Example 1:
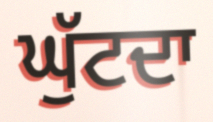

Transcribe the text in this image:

ਘੁੱਟਦਾ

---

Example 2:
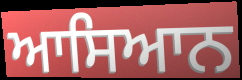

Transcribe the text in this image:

ਆਸਿਆਨ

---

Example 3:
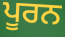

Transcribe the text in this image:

ਪੂਰਨ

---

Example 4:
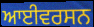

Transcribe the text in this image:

ਆਈਵਰਸਨ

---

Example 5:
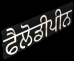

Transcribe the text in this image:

ਫੈਲੋਡੀਪੀਨ